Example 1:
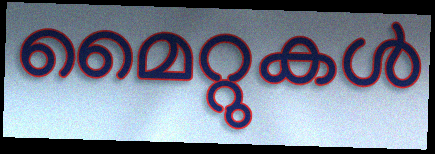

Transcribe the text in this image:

മൈറ്റുകൾ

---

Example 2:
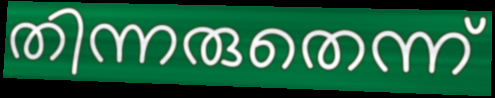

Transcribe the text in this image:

തിന്നരുതെന്ന്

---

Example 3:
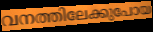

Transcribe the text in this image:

വനത്തിലേക്കുപോയ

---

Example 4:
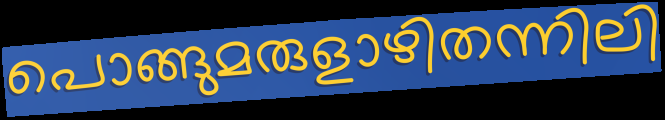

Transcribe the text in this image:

പൊങ്ങുമരുളാഴിതന്നിലി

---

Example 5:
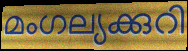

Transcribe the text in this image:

മംഗല്യക്കുറി